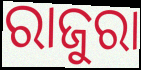
ରାଜୁରା